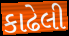
કાઢેલી